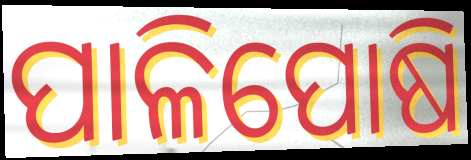
ପାଳିପୋଷି